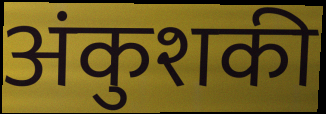
अंकुशकी